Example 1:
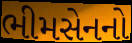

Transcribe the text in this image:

ભીમસેનનો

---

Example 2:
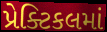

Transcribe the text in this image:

પ્રેક્ટિકલમાં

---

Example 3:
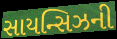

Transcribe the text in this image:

સાયન્સિઝની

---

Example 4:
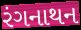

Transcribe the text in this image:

રંગનાથન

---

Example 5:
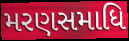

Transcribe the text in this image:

મરણસમાધિ